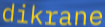
dikrane